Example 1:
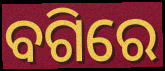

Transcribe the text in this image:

ବଗିରେ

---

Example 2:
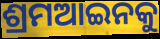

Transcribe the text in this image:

ଶ୍ରମଆଇନକୁ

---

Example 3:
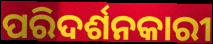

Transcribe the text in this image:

ପରିଦର୍ଶନକାରୀ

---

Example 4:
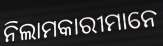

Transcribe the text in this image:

ନିଲାମକାରୀମାନେ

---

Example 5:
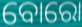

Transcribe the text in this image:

ବୋରୋ